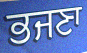
ਭਜਣਾ